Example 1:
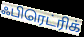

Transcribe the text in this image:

ஃபிரெட்ரிக்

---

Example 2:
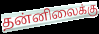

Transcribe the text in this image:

தன்னிலைக்கு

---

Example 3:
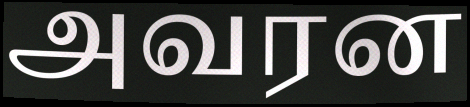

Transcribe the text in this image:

அவரன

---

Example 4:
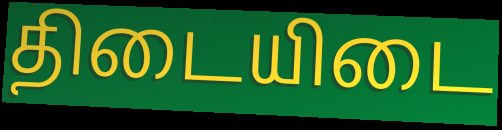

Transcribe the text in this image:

திடையிடை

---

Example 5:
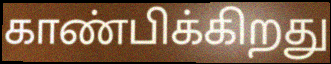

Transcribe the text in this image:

காண்பிக்கிறது